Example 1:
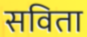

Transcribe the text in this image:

सविता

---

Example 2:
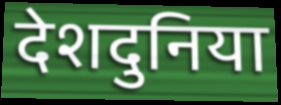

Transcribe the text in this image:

देशदुनिया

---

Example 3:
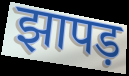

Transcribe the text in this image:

झापड़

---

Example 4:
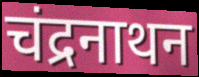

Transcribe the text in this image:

चंद्रनाथन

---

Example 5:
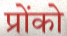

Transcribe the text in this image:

प्रोंको